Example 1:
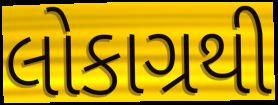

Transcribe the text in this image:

લોકાગ્રથી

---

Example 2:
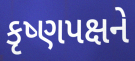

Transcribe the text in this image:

કૃષ્ણપક્ષને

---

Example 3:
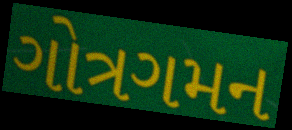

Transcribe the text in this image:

ગોત્રગમન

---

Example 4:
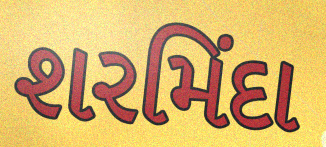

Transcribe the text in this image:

શરમિંદા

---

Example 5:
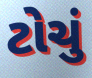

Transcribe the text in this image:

ટોચું